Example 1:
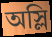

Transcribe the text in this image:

অস্লি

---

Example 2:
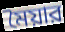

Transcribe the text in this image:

মৈয়ার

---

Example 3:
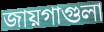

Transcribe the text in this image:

জায়গাগুলা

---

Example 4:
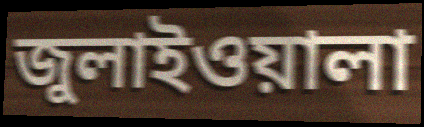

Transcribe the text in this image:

জুলাইওয়ালা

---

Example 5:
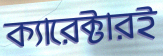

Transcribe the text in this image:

ক্যারেক্টারই